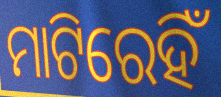
ମାଟିରେହିଁ